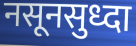
नसूनसुध्दा